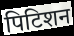
पिटिशन